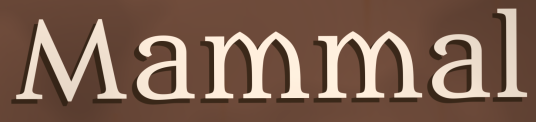
Mammal